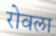
रोवला